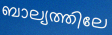
ബാല്യത്തിലേ